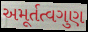
અમૂર્તત્વગુણ